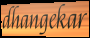
dhangekar